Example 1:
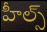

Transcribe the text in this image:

హీల్స్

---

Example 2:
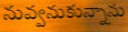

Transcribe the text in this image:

నువ్వనుకున్నాను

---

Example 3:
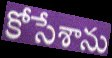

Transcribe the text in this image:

కోసేశాను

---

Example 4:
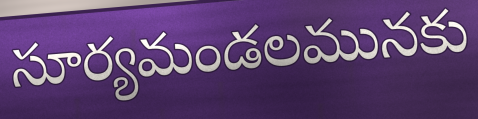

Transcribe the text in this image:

సూర్యమండలమునకు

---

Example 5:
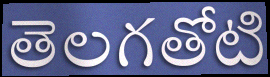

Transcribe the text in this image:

తెలగతోటి